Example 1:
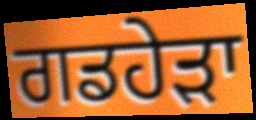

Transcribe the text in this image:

ਗਡਹੇੜਾ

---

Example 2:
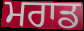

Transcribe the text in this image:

ਮਰਾਡ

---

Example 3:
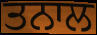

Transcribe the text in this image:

ਤਨਾਲ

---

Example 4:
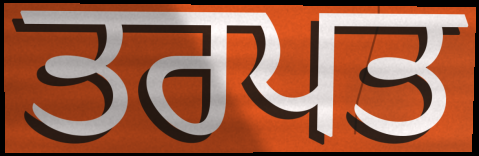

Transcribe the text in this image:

ਤਰਪਤ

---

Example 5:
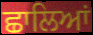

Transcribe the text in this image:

ਛਾਲਿਆਂ